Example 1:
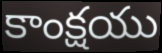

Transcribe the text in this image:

కాంక్షయు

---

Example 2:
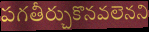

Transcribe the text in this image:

పగతీర్చుకొనవలెనని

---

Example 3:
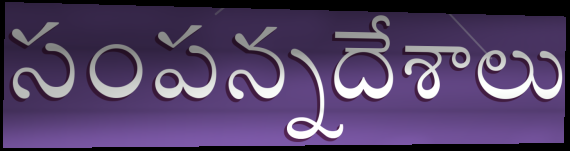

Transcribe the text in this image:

సంపన్నదేశాలు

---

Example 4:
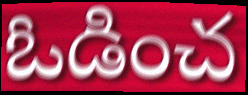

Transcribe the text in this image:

ఓడించ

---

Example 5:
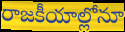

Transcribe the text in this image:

రాజకీయాల్లోనూ